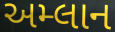
અમ્લાન